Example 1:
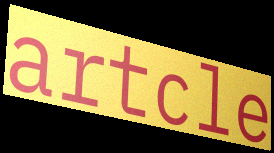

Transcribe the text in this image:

artcle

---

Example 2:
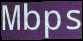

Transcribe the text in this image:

Mbps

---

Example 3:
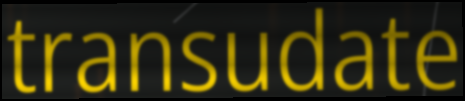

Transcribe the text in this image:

transudate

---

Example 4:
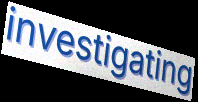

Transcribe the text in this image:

investigating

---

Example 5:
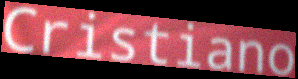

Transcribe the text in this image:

Cristiano